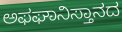
ಅಫಘಾನಿಸ್ತಾನದ